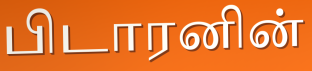
பிடாரனின்